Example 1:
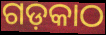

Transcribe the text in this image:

ଗଡ଼କାଠ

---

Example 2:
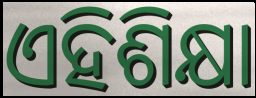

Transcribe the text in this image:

ଏହିଶିକ୍ଷା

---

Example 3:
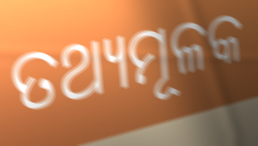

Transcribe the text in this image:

ତଥ୍ୟମୂଳକ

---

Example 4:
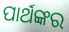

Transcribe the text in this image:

ପାର୍ଥଙ୍କର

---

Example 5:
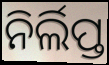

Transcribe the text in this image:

ନିର୍ଲିପ୍ତ